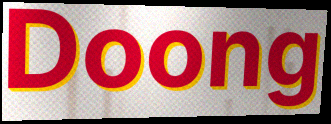
Doong